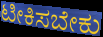
ಟೀಕಿಸಬೇಕು